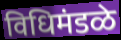
विधिमंडळे